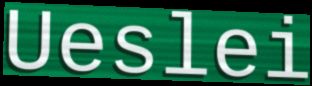
Ueslei